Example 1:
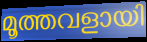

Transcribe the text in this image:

മൂത്തവളായി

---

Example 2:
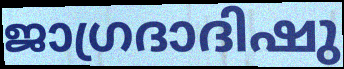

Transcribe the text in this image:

ജാഗ്രദാദിഷു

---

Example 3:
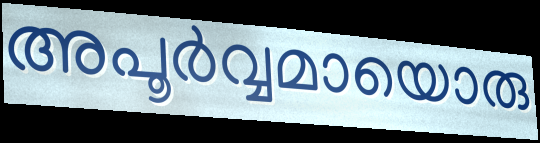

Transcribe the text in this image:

അപൂർവ്വമായൊരു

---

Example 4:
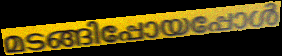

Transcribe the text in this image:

മടങ്ങിപ്പോയപ്പോൾ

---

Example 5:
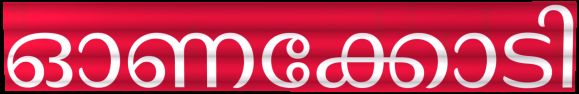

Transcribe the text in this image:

ഓണക്കോടി